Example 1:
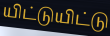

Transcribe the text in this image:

யிட்டுயிட்டு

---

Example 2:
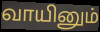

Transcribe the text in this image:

வாயினும்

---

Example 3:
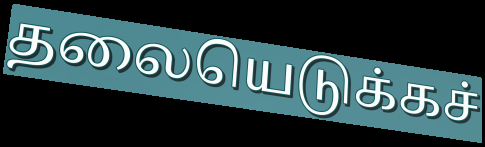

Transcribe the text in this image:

தலையெடுக்கச்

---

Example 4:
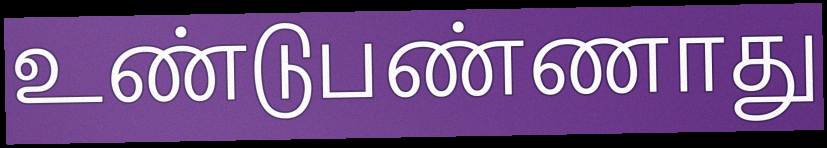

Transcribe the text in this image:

உண்டுபண்ணாது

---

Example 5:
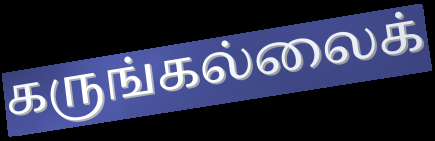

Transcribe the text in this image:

கருங்கல்லைக்